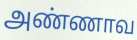
அண்ணாவ